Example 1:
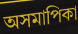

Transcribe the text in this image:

অসমাপিকা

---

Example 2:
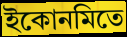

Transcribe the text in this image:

ইকোনমিতে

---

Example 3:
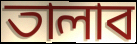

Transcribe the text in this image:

তালাব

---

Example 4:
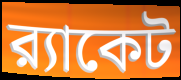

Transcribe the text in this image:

র‍্যাকেট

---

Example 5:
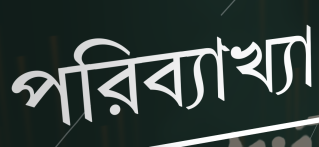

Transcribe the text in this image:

পরিব্যাখ্যা